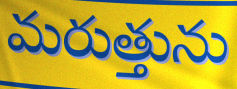
మరుత్తును